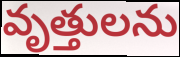
వృత్తులను